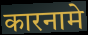
कारनामे